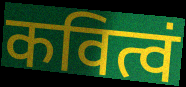
कवित्वं